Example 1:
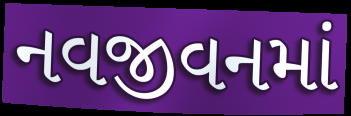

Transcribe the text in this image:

નવજીવનમાં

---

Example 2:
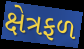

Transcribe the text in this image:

ક્ષેત્રફળ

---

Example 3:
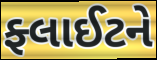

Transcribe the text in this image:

ફ્લાઈટને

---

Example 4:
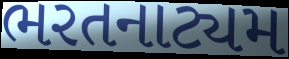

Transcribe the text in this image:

ભરતનાટ્યમ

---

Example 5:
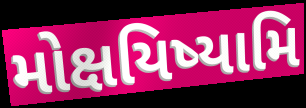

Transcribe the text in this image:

મોક્ષયિષ્યામિ